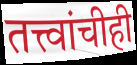
तत्त्वांचीही